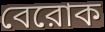
বেরোক